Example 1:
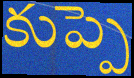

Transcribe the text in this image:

కుప్పె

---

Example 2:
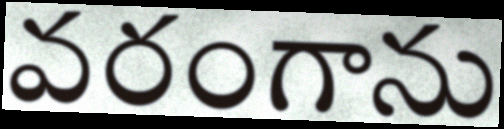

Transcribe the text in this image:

వరంగాను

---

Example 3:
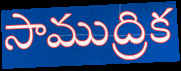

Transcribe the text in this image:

సాముద్రిక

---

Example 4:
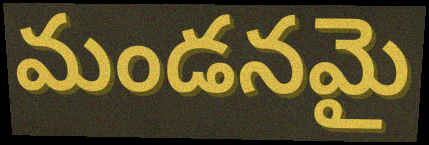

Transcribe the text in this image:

మండనమై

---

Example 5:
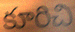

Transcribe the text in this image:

కూరిచి